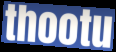
thootu